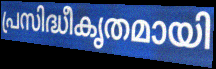
പ്രസിദ്ധീകൃതമായി